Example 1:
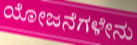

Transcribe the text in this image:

ಯೋಜನೆಗಳೇನು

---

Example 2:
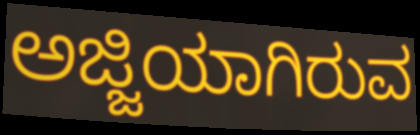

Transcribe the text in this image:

ಅಜ್ಜಿಯಾಗಿರುವ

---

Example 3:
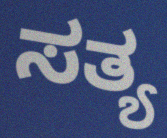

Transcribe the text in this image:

ಸತ್ಯ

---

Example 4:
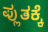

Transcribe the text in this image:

ಪ್ಲುತಕ್ಕೆ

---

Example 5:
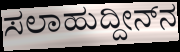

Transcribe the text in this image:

ಸಲಾಹುದ್ದೀನ್‍ನ